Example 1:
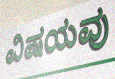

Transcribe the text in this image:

ವಿಷಯವು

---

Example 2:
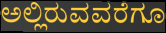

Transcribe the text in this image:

ಅಲ್ಲಿರುವವರೆಗೂ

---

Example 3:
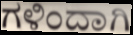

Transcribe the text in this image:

ಗಳಿಂದಾಗಿ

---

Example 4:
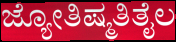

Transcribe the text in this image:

ಜ್ಯೋತಿಷ್ಮತಿತೈಲ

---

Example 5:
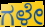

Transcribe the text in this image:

ಗಳೇ